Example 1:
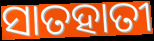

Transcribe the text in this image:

ସାତହାତୀ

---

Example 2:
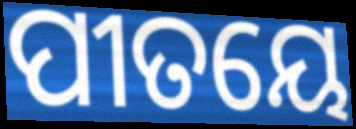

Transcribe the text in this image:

ପୀତୟେ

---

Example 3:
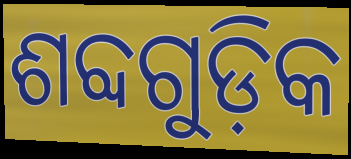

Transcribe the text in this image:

ଶବ୍ଦଗୁଡ଼ିକ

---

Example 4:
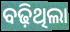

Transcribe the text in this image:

ବଢ଼ିଥିଲା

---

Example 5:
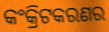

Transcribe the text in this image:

କଂକ୍ରିଟକରଣର